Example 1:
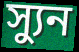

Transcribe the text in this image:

স্যুন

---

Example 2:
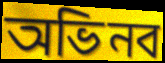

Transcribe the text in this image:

অভিনব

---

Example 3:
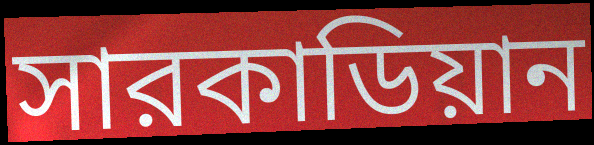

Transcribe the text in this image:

সারকাডিয়ান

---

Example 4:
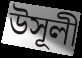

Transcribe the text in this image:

উসূলী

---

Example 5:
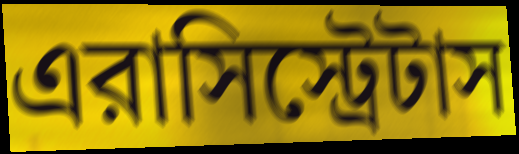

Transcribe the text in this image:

এরাসিস্ট্রেটাস